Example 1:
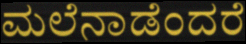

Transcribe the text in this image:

ಮಲೆನಾಡೆಂದರೆ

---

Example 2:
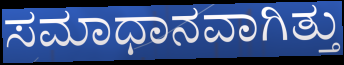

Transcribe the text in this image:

ಸಮಾಧಾನವಾಗಿತ್ತು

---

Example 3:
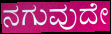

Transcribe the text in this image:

ನಗುವುದೇ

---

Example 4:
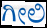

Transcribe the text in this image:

ಗೀಲಿ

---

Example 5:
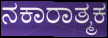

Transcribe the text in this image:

ನಕಾರಾತ್ಮಕ